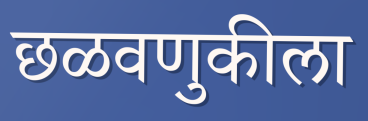
छळवणुकीला